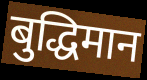
बुद्धिमान